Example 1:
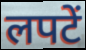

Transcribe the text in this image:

लपटें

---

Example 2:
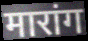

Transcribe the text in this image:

मारांग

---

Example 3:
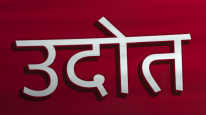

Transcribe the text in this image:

उदोत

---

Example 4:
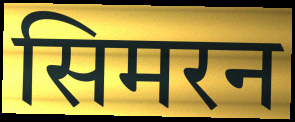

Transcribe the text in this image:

सिमरन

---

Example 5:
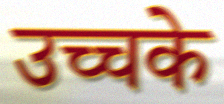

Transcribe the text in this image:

उच्चके